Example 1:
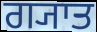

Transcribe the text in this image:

ਗ੍ਯਾਤ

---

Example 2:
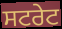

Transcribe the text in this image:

ਸਟਰੇਟ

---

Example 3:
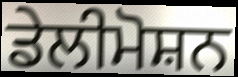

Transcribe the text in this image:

ਡੇਲੀਮੋਸ਼ਨ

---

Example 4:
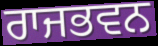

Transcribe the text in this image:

ਰਾਜਭਵਨ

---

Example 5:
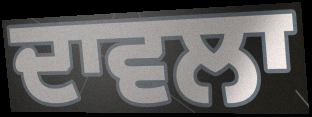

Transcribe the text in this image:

ਦਾਵਲਾ